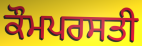
ਕੌਮਪਰਸਤੀ